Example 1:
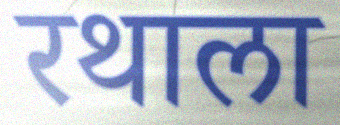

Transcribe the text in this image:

रथाला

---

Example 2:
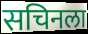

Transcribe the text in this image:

सचिनला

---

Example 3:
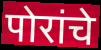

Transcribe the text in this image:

पोरांचे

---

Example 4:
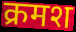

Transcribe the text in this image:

क्रमश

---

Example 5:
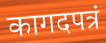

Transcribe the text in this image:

कागदपत्रं